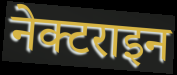
नेक्टराइन